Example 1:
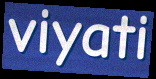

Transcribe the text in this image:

viyati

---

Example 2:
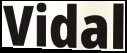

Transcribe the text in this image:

Vidal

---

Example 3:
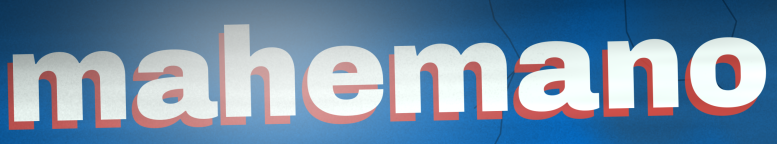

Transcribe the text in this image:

mahemano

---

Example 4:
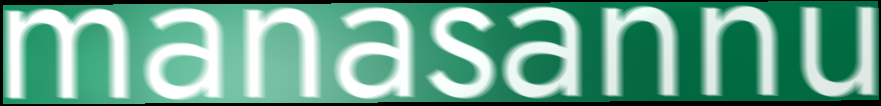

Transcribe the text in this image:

manasannu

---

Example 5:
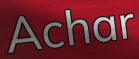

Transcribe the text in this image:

Achar